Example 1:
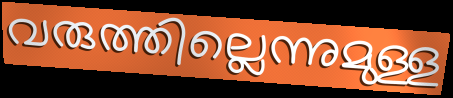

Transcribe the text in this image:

വരുത്തില്ലെന്നുമുള്ള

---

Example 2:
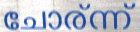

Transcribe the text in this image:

ചോര്ന്ന്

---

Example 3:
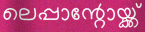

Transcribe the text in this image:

ലെപ്പാന്റോയ്ക്ക്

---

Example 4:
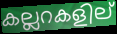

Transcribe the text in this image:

കല്ലറകളില്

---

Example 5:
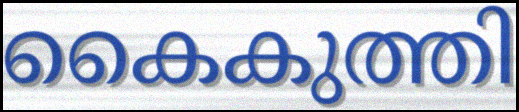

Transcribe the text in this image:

കൈകുത്തി